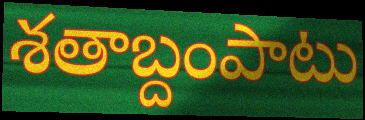
శతాబ్దంపాటు